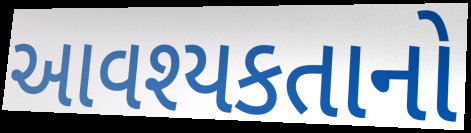
આવશ્યકતાનો